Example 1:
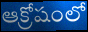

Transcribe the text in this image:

ఆక్రోషంలో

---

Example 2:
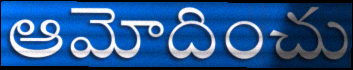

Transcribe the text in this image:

ఆమోదించు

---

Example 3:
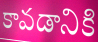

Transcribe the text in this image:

కావడానికి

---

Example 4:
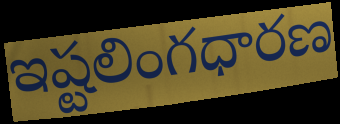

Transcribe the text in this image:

ఇష్టలింగధారణ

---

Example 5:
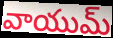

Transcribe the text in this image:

వాయుమ్